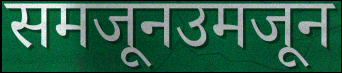
समजूनउमजून